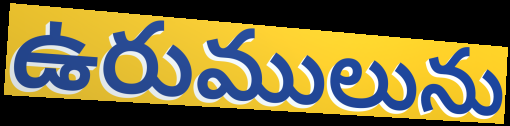
ఉరుములును